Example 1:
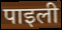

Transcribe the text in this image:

पाइली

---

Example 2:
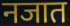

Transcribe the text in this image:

नजात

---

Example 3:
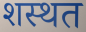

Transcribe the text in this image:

शस्थत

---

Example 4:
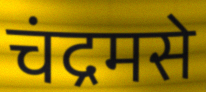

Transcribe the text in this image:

चंद्रमसे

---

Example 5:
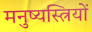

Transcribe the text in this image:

मनुष्यस्त्रियों